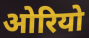
ओरियो